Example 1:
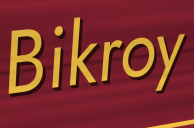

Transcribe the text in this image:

Bikroy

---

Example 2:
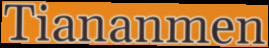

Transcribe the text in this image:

Tiananmen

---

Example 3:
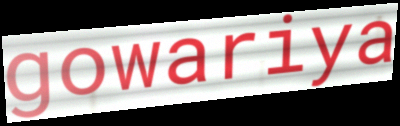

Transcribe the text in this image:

gowariya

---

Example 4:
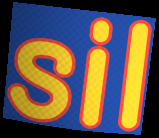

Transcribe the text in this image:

sil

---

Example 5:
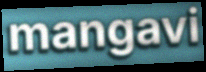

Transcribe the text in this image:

mangavi